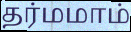
தர்மமாம்